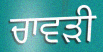
ਚਾਵੜੀ